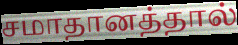
சமாதானத்தால்